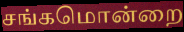
சங்கமொன்றை